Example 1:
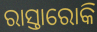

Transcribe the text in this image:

ରାସ୍ତାରୋକି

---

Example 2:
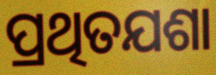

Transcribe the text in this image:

ପ୍ରଥିତଯଶା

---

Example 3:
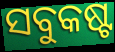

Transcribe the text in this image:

ସବୁକଷ୍ଟ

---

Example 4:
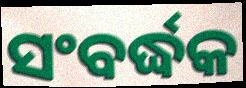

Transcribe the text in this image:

ସଂବର୍ଦ୍ଧକ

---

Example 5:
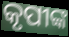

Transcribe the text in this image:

କୃପୀଙ୍କ